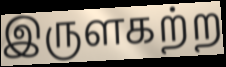
இருளகற்ற